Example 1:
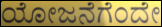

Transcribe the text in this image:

ಯೋಜನೆಗೆಂದೇ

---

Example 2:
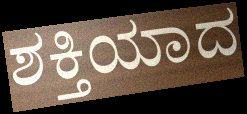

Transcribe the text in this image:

ಶಕ್ತಿಯಾದ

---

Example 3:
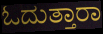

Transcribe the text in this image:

ಓದುತ್ತಾರಾ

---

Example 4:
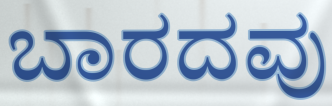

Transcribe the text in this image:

ಬಾರದವು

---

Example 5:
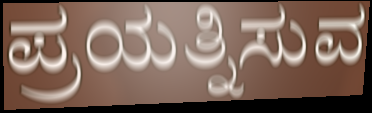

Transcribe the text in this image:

ಪ್ರಯತ್ನಿಸುವ